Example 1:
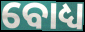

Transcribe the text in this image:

ବୋଧ୍ୟ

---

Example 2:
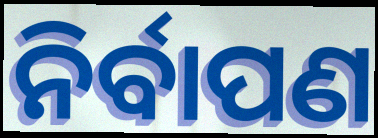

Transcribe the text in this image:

ନିର୍ବାପଣ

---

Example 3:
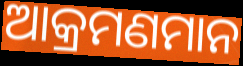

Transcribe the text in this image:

ଆକ୍ରମଣମାନ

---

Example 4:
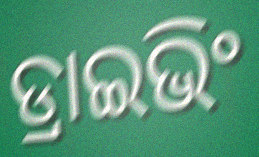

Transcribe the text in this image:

ଡ୍ରାଇଭିଂ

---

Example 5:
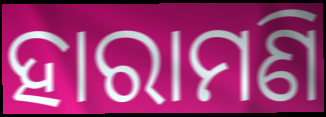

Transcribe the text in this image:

ହାରାମଣି